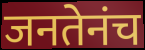
जनतेनंच